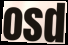
osd